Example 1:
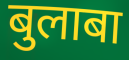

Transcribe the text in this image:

बुलाबा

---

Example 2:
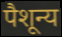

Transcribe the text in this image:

पैशून्य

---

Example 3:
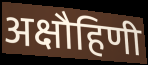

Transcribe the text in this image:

अक्षौहिणी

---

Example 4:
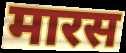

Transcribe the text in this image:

मारस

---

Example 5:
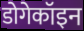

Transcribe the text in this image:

डोगेकॉइन